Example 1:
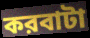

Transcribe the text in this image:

করবাটা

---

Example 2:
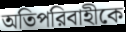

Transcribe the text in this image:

অতিপরিবাহীকে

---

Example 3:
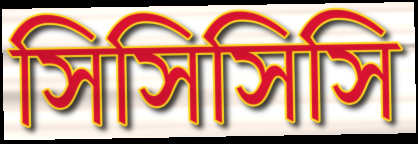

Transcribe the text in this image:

সিসিসিসি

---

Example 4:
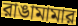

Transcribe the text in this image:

রাঙামামার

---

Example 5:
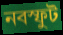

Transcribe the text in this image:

নবস্ফুট